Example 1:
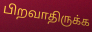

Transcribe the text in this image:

பிறவாதிருக்க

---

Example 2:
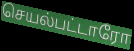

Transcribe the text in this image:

செயல்பட்டாரோ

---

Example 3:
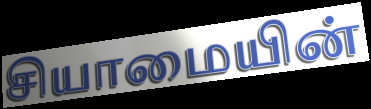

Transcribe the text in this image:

சியாமையின்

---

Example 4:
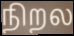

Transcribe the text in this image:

நிறல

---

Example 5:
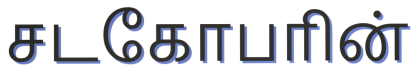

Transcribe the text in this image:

சடகோபரின்